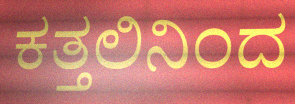
ಕತ್ತಲಿನಿಂದ